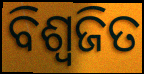
ବିଶ୍ଵଜିତ